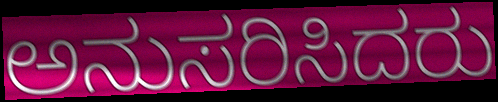
ಅನುಸರಿಸಿದರು